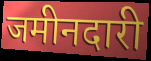
जमीनदारी